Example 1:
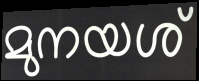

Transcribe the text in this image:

മുനയശ്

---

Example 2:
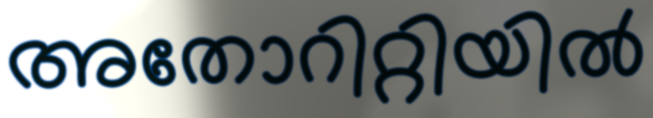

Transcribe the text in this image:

അതോറിറ്റിയിൽ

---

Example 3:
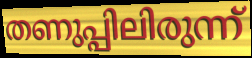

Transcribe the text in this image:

തണുപ്പിലിരുന്ന്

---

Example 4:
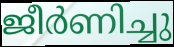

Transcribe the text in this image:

ജീർണിച്ചു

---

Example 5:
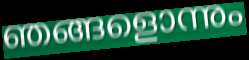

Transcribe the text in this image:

ഞങ്ങളൊന്നും